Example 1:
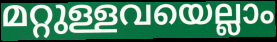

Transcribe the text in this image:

മറ്റുള്ളവയെല്ലാം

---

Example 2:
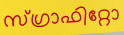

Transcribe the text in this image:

സ്ഗ്രാഫിറ്റോ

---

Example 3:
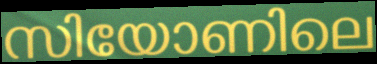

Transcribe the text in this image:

സിയോണിലെ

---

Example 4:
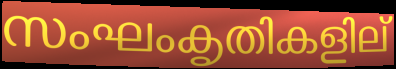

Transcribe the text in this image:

സംഘംകൃതികളില്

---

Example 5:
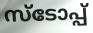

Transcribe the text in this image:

സ്ടോപ്പ്